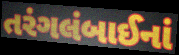
તરંગલંબાઈનાં